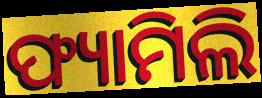
ଫ୍ୟାମିଲି